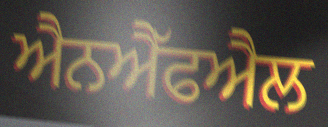
ਐਨਐੱਫਐਲ